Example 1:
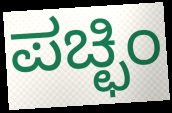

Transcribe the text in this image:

ಪಚ್ಛಿಂ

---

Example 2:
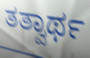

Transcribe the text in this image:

ತತ್ವಾರ್ಥ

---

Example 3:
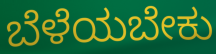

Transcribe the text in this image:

ಬೆಳೆಯಬೇಕು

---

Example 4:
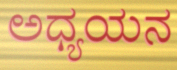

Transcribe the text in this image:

ಅಧ್ಯಯನ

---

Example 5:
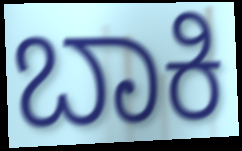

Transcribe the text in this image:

ಬಾಕಿ